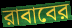
রাবাবের